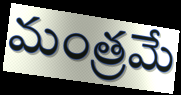
మంత్రమే